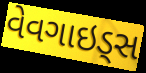
વેવગાઇડ્સ